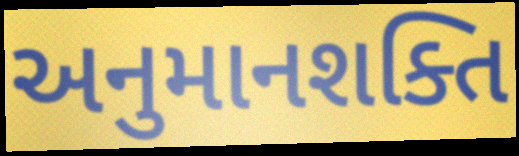
અનુમાનશક્તિ